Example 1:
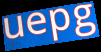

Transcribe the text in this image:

uepg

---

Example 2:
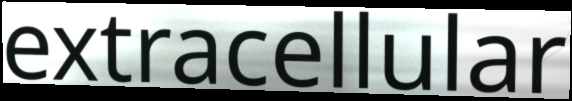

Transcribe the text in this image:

extracellular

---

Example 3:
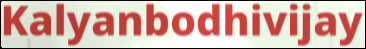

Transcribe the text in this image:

Kalyanbodhivijay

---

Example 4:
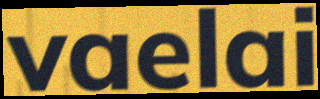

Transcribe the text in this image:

vaelai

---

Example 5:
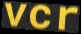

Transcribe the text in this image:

vcr